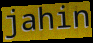
jahin